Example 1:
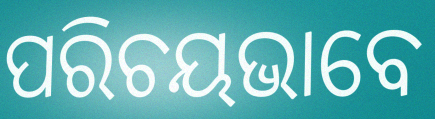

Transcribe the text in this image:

ପରିଚୟଭାବେ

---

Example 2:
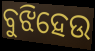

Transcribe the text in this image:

ବୁଝିହେଉ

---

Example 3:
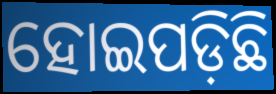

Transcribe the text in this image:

ହୋଇପଡ଼ିଛି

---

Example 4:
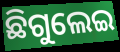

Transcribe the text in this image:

ଛିଗୁଲେଇ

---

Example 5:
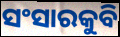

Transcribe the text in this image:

ସଂସାରକୁବି